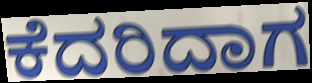
ಕೆದರಿದಾಗ